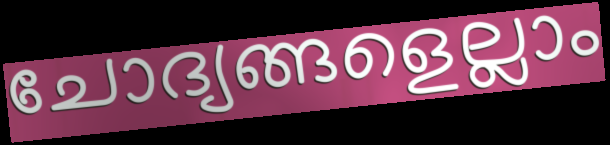
ചോദ്യങ്ങളെല്ലാം